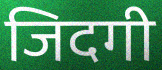
जिदगी